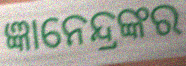
ଜ୍ଞାନେନ୍ଦ୍ରଙ୍କର